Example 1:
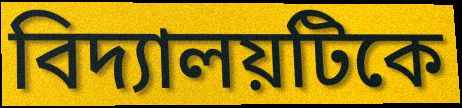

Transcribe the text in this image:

বিদ্যালয়টিকে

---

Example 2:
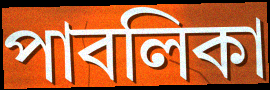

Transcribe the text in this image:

পাবলিকা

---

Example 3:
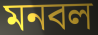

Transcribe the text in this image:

মনবল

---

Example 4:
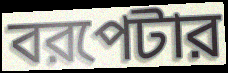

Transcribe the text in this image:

বরপেটার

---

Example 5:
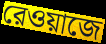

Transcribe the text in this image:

রেওয়াজে